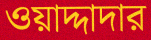
ওয়াদ্দাদার